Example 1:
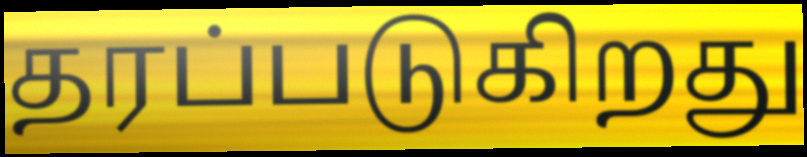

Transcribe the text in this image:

தரப்படுகிறது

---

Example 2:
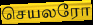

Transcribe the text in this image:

செயலரோ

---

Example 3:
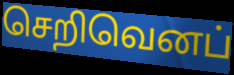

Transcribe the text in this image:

செறிவெனப்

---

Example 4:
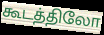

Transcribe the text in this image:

கூடத்திலோ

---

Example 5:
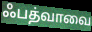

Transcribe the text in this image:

ஃபத்வாவை